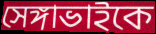
সেঙ্গাভাইকে